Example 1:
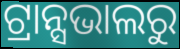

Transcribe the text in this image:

ଟ୍ରାନ୍ସଭାଲରୁ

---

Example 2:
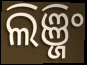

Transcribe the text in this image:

ଲିଞ୍ଜିଂ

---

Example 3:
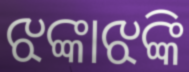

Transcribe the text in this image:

ଝଙ୍କାଝଙ୍କି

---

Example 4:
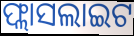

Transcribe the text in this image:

ଫ୍ଲାସଲାଇଟ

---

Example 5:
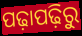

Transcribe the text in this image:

ପଢ଼ାପଢ଼ିରୁ